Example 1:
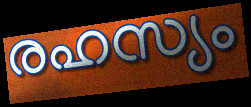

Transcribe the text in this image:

രഹസ്യം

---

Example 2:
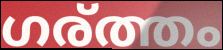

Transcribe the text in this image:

ഗര്ത്തം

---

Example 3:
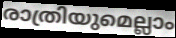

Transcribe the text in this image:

രാത്രിയുമെല്ലാം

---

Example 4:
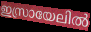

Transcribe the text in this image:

ഇസ്രായേലിൽ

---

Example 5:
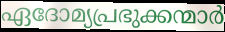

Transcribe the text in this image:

ഏദോമ്യപ്രഭുക്കന്മാർ